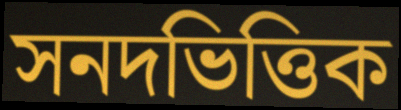
সনদভিত্তিক